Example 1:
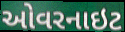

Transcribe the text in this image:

ઓવરનાઇટ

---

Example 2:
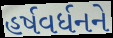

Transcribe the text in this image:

હર્ષવર્ધનને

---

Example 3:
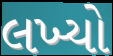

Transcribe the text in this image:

લખ્યો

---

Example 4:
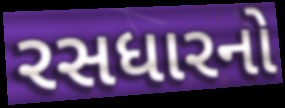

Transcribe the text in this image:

રસધારનો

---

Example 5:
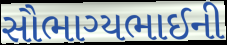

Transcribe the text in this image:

સૌભાગ્યભાઈની